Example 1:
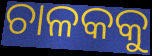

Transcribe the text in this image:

ଚାଳକକୁ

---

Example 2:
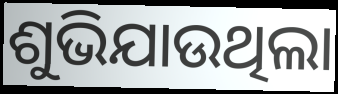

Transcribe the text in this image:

ଶୁଭିଯାଉଥିଲା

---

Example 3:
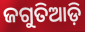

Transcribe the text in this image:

ଜଗୁତିଆଡ଼ି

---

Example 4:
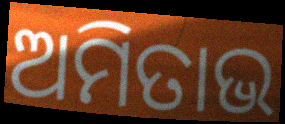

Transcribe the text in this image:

ଅମିତାଭ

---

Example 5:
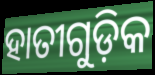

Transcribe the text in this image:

ହାତୀଗୁଡ଼ିକ